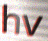
hv